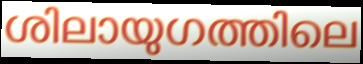
ശിലായുഗത്തിലെ